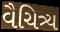
વૈચિત્ર્ય